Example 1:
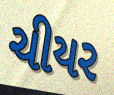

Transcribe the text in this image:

ચીયર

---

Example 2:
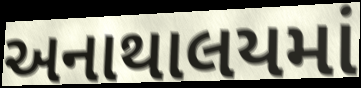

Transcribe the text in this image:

અનાથાલયમાં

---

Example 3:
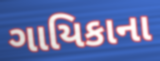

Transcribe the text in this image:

ગાયિકાના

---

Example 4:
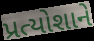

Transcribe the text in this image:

પ્રત્યોશાને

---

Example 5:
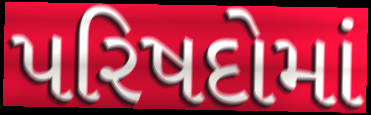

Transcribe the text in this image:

પરિષદોમાં